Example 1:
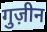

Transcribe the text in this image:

गुज़ीन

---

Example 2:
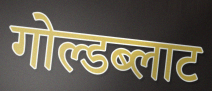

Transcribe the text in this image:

गोल्डब्लाट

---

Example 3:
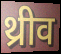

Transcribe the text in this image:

थ्रीव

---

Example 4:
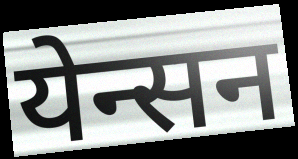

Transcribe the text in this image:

येन्सन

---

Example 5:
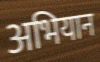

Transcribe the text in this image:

अभियान